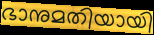
ഭാനുമതിയായി